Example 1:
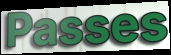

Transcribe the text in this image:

Passes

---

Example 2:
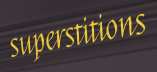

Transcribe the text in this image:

superstitions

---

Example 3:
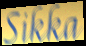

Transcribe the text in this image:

Sikka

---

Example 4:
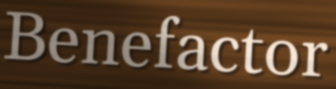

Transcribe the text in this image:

Benefactor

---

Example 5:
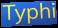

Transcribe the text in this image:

Typhi